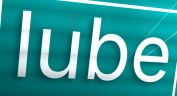
lube